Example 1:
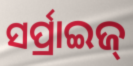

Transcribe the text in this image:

ସର୍ପ୍ରାଇଜ୍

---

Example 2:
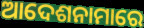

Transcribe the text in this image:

ଆଦେଶନାମାରେ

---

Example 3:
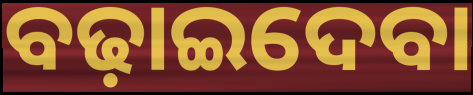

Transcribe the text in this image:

ବଢ଼ାଇଦେବା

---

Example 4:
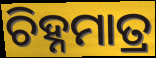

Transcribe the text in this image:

ଚିହ୍ନମାତ୍ର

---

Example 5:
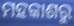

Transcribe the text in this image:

ମହକାଶରୁ